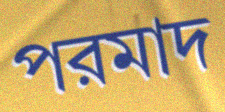
পরমাদ